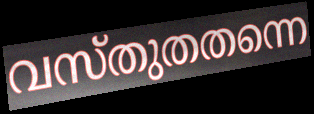
വസ്തുതതന്നെ